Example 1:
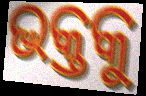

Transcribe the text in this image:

ଭକ୍ତକୁ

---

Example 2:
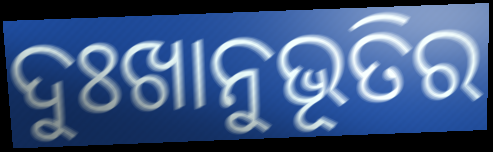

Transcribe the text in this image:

ଦୁଃଖାନୁଭୂତିର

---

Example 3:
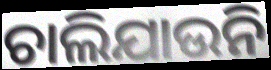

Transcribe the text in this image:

ଚାଲିଯାଉନି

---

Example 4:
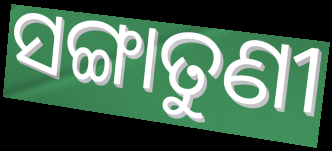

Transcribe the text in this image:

ସଙ୍ଗାତୁଣୀ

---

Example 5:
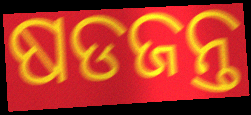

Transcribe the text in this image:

ଷଡଜନ୍ତ